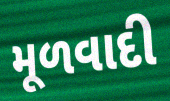
મૂળવાદી